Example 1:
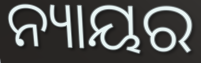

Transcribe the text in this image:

ନ୍ୟାୟର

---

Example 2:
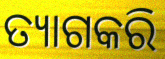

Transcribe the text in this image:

ତ୍ୟାଗକରି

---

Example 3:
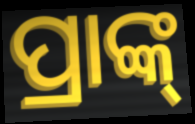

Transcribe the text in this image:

ପ୍ରାଙ୍କ୍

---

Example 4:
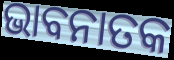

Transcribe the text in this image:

ଭାବନାତକ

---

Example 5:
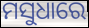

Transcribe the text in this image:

ମସୁଧାରେ